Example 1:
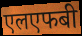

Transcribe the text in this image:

एलएफबी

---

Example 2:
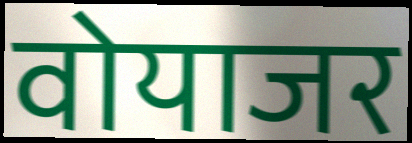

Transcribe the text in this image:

वोयाजर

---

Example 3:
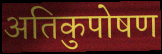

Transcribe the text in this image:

अतिकुपोषण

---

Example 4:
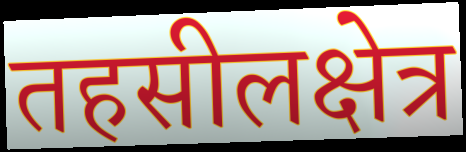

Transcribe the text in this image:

तहसीलक्षेत्र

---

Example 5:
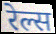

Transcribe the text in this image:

रेल्स